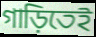
গাড়িতেই